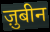
ज़ुबीन